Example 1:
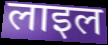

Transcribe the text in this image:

लाइल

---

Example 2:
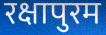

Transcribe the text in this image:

रक्षापुरम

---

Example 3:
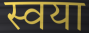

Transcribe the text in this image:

स्वया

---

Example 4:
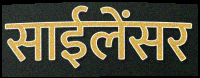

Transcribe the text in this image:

साईलेंसर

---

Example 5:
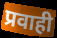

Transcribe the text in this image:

प्रवाही